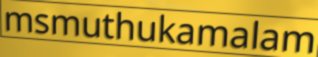
msmuthukamalam